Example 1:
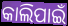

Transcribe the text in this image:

କାଲିପାଇଁ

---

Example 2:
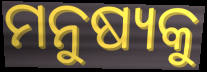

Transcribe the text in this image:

ମନୁଷ୍ୟକୁ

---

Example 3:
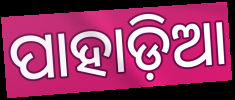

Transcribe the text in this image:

ପାହାଡ଼ିଆ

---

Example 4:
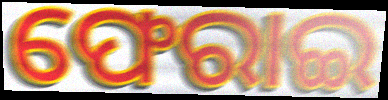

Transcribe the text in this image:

ଫେରାଇ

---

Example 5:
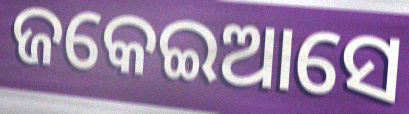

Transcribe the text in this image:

ଜକେଇଆସେ